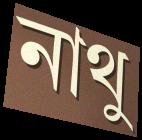
নাথু